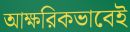
আক্ষরিকভাবেই